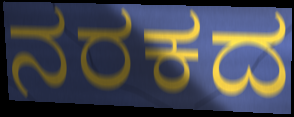
ನರಕದ